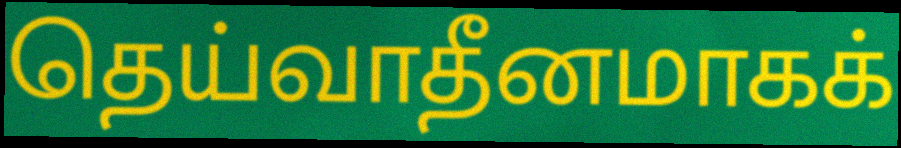
தெய்வாதீனமாகக்